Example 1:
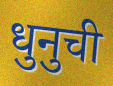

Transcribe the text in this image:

धुनुची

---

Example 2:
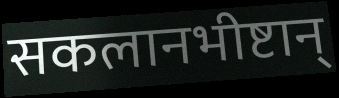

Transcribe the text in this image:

सकलानभीष्टान्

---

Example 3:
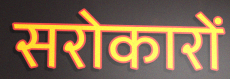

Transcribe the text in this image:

सरोकारों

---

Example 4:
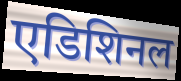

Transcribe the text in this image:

एडिशिनल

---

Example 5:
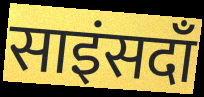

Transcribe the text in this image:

साइंसदाँ